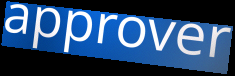
approver